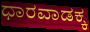
ಧಾರವಾಡಕ್ಕ